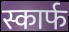
स्कार्फ